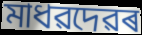
মাধৱদেৱৰ